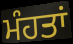
ਮੰਹਤਾਂ